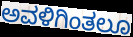
ಅವಳಿಗಿಂತಲೂ